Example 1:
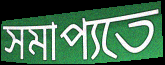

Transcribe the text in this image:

সমাপ্যতে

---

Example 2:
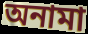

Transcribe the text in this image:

অনামা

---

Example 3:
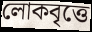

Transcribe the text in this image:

লোকবৃত্তে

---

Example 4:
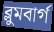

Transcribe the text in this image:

ব্লুমবার্গ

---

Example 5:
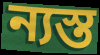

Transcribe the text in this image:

ন্যস্ত